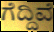
ಗೆದ್ದಿವೆ